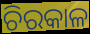
ଚିରକାଳ